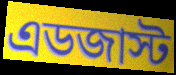
এডজাস্ট